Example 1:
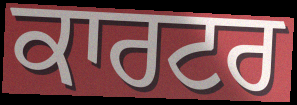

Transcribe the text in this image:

ਕਾਰਟਰ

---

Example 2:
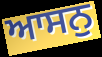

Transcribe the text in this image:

ਆਸਨੁ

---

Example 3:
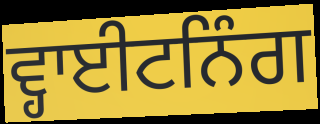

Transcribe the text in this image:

ਵ੍ਹਾਈਟਨਿੰਗ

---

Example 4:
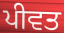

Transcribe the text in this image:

ਪੀਵਤ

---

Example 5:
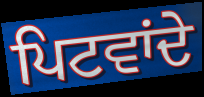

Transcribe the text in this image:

ਪਿਟਵਾਂਦੇ